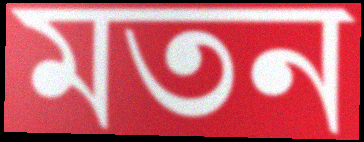
মতন